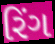
રિંગ